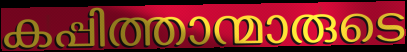
കപ്പിത്താന്മാരുടെ